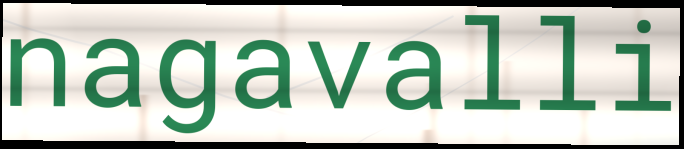
nagavalli